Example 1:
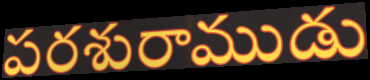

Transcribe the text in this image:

పరశురాముడు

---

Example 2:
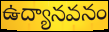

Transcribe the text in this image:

ఉద్యానవనం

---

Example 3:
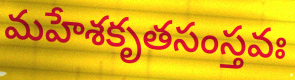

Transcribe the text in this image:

మహేశకృతసంస్తవః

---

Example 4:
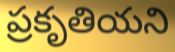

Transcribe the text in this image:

ప్రకృతియని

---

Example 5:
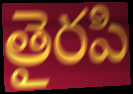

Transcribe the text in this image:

తైరపి